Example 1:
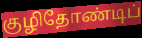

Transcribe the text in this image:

குழிதோண்டிப்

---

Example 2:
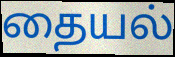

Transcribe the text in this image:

தையல்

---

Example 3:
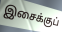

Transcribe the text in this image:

இசைக்குப்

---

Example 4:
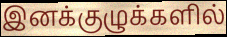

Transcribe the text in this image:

இனக்குழுக்களில்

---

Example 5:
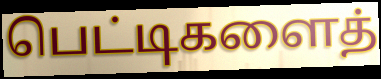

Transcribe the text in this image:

பெட்டிகளைத்